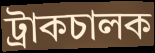
ট্রাকচালক